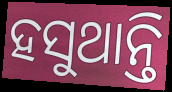
ହସୁଥାନ୍ତି